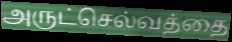
அருட்செல்வத்தை